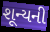
શૂન્યની